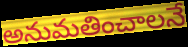
అనుమతించాలనే